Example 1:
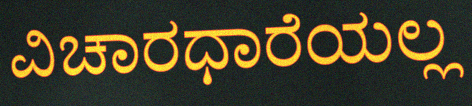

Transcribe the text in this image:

ವಿಚಾರಧಾರೆಯಲ್ಲ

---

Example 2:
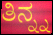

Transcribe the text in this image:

ತಿನ್ನ್ನ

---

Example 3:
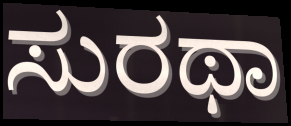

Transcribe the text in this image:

ಸುರಥಾ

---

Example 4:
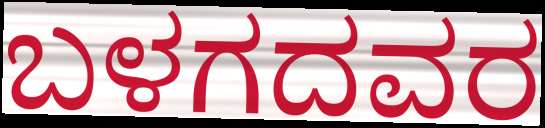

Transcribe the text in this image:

ಬಳಗದವರ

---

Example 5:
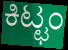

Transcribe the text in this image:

ಕಿಟ್ಟಂ